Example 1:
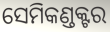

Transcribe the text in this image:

ସେମିକଣ୍ଡକ୍ଟର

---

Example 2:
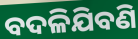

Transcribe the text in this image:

ବଦଳିଯିବଣି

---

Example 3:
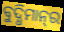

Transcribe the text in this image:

ବୁଦ୍ଧିମାନ୍‍ର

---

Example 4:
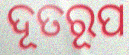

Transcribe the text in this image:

ଦୂତରୂପ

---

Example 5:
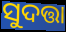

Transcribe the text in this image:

ସୁଦତ୍ତା